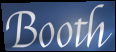
Booth